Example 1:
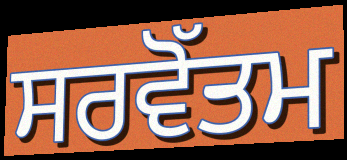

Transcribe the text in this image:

ਸਰਵੋੱਤਮ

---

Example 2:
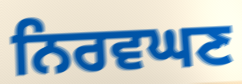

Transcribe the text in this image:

ਨਿਰਵਘਣ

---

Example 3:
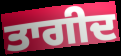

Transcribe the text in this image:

ਤਾਗੀਦ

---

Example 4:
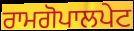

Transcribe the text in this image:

ਰਾਮਗੋਪਾਲਪੇਟ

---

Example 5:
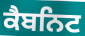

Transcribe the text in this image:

ਕੈਬਨਿਟ